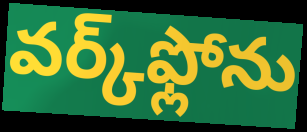
వర్క్‌ఫ్లోను